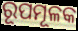
ରୂପମୂଳକ